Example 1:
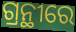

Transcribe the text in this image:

ଗ୍ରନ୍ଥୀରେ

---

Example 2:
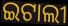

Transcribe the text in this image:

ଇଟାଲୀ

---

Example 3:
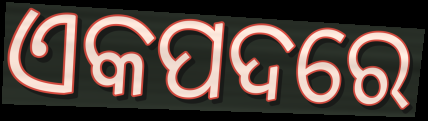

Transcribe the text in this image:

ଏକପଦରେ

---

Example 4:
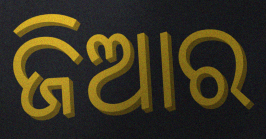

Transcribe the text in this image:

ଜିଆର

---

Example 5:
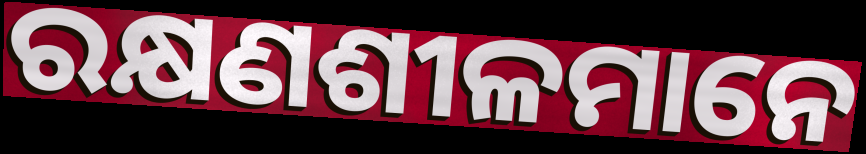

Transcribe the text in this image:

ରକ୍ଷଣଶୀଳମାନେ